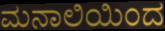
ಮನಾಲಿಯಿಂದ